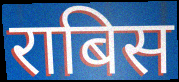
राबिस